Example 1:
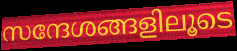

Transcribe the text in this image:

സന്ദേശങ്ങളിലൂടെ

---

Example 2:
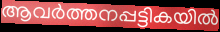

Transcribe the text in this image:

ആവർത്തനപ്പട്ടികയിൽ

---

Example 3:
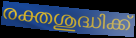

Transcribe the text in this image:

രക്തശുദ്ധിക്ക്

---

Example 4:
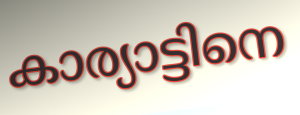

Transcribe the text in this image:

കാര്യാട്ടിനെ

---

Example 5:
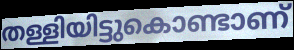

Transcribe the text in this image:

തള്ളിയിട്ടുകൊണ്ടാണ്